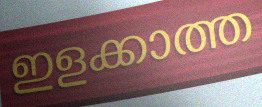
ഇളക്കാത്ത